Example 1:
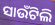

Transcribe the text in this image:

ସାଉଁଟିଲି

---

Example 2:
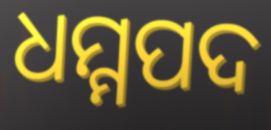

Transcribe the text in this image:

ଧମ୍ମପଦ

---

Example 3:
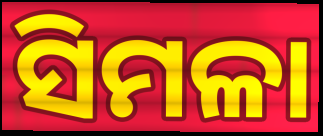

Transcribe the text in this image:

ସିମଳା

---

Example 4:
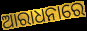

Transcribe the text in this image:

ଆରାଧନାରେ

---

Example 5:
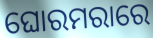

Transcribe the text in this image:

ଘୋରମରାରେ